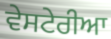
ਵੇਸਟੇਰੀਆ